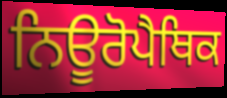
ਨਿਊਰੋਪੈਥਿਕ